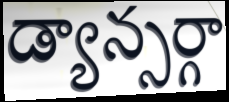
డ్యాన్సర్గా